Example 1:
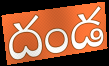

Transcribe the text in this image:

దండ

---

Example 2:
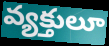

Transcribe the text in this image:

వ్యక్తులూ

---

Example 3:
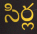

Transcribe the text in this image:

సిర్ల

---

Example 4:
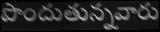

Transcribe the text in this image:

పొందుతున్నవారు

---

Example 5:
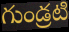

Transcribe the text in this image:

గుండ్రటి